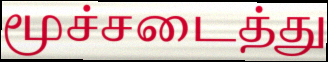
மூச்சடைத்து